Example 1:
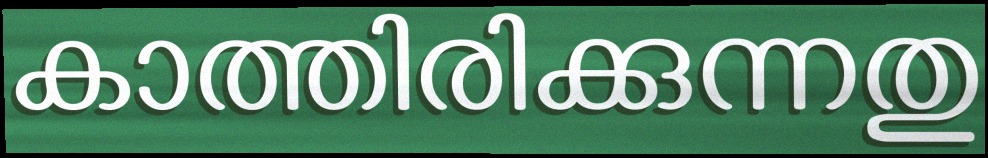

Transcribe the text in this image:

കാത്തിരിക്കുന്നതു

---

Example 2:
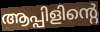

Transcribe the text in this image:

ആപ്പിളിന്റെ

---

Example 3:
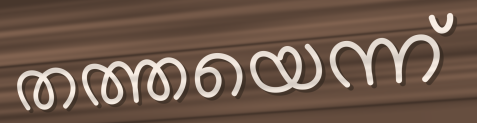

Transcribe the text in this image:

തത്തയെന്ന്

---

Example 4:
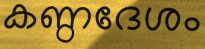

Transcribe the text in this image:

കണ്ഠദേശം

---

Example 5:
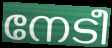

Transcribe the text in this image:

നേടീ